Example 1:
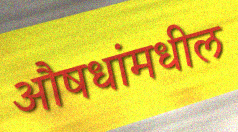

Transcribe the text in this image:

औषधांमधील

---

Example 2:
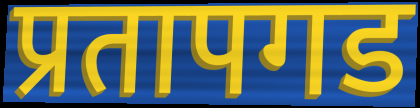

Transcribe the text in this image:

प्रतापगड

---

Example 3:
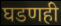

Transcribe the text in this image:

घडणही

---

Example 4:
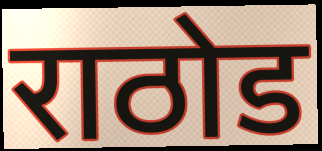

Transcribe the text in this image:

राठोड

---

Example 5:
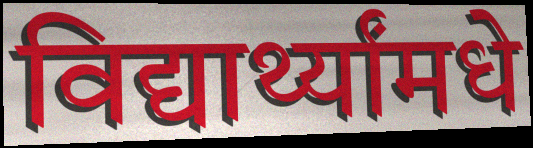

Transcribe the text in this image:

विद्यार्थ्यांमधे